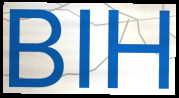
BIH